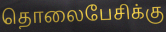
தொலைபேசிக்கு